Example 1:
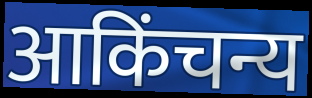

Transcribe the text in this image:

आकिंचन्य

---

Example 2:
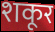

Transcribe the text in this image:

शकूर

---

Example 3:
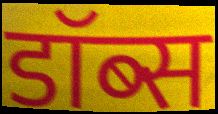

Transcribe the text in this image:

डॉब्स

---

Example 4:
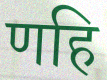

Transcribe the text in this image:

णहि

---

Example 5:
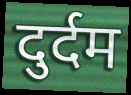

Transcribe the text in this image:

दुर्दम